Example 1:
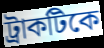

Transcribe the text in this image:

ট্রাকটিকে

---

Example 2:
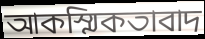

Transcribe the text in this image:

আকস্মিকতাবাদ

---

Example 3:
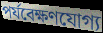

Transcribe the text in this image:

পর্যবেক্ষণযোগ্য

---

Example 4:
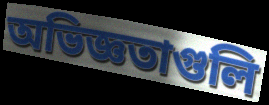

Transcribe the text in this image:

অভিজ্ঞতাগুলি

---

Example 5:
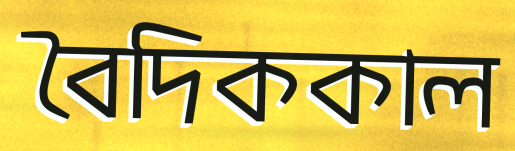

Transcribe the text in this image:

বৈদিককাল